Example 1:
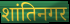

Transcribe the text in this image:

शांतिनगर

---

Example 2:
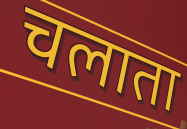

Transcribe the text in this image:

चलाता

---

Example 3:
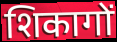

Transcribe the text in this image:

शिकागों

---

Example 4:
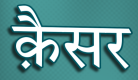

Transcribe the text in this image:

क़ैसर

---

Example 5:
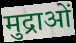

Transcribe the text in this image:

मुद्राओं